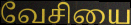
வேசியை